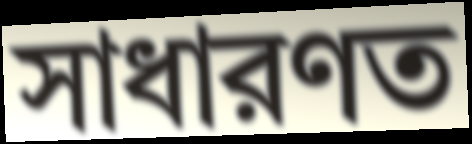
সাধারণত